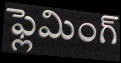
ఫ్లెమింగ్